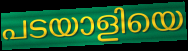
പടയാളിയെ